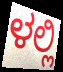
ಳಲ್ಲಿ